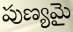
పుణ్యమై